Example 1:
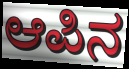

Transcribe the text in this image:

ಆಪಿನ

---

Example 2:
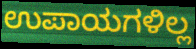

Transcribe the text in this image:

ಉಪಾಯಗಳಿಲ್ಲ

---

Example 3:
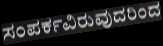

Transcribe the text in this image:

ಸಂಪರ್ಕವಿರುವುದರಿಂದ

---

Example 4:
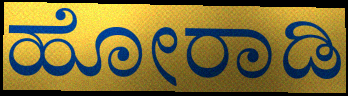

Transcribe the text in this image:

ಹೋರಾಡಿ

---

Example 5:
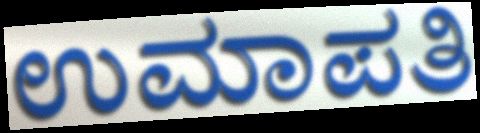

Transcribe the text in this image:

ಉಮಾಪತಿ